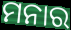
ମନାର